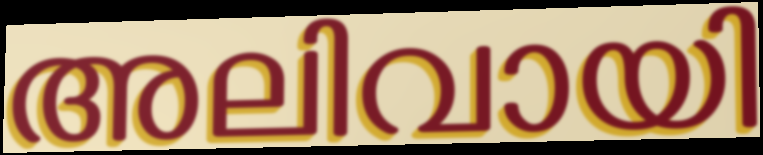
അലിവായി